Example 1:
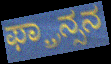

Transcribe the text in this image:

ಫ಼್ರಾನ್ಸನ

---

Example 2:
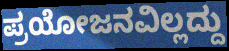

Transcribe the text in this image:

ಪ್ರಯೋಜನವಿಲ್ಲದ್ದು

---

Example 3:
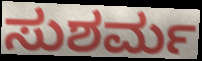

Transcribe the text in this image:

ಸುಶರ್ಮ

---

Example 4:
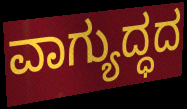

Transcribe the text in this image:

ವಾಗ್ಯುದ್ಧದ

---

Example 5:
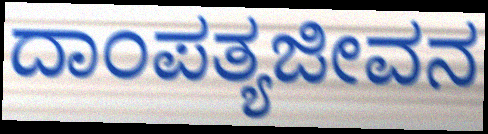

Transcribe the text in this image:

ದಾಂಪತ್ಯಜೀವನ